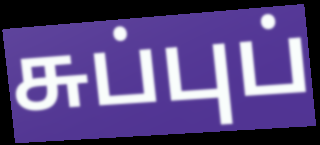
சுப்புப்